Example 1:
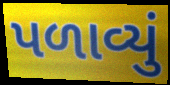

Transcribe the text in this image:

પળાવ્યું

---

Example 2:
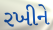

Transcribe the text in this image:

રખીને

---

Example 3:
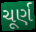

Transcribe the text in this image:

ચૂર્ણ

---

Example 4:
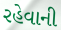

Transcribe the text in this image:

રહેવાની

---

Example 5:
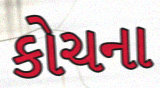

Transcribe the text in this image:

કોચના